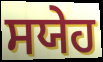
ਸਯੇਹ